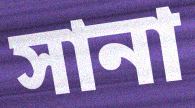
সানা